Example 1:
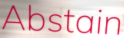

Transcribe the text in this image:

Abstain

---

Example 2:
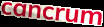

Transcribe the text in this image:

cancrum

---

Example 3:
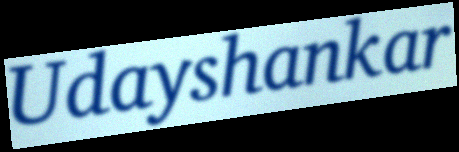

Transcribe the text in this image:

Udayshankar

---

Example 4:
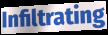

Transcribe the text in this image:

Infiltrating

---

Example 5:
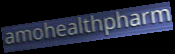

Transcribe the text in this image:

amohealthpharm